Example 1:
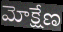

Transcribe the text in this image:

మోక్షేణ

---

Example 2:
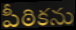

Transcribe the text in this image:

పీఠికను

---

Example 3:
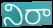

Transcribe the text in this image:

నిరా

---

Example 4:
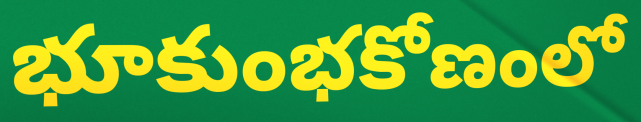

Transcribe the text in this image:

భూకుంభకోణంలో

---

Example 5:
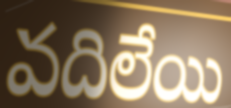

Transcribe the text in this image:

వదిలేయి